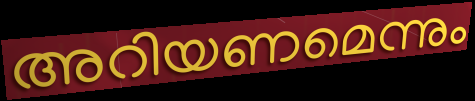
അറിയണമെന്നും